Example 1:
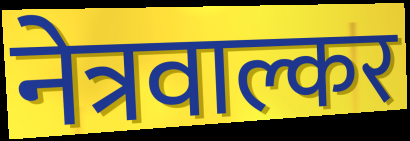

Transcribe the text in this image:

नेत्रवाल्कर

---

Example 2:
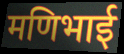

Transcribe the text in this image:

मणिभाई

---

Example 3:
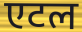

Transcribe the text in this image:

एटल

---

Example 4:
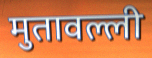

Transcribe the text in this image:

मुतावल्ली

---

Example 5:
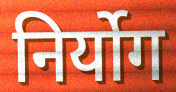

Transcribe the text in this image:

निर्योग